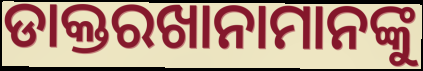
ଡାକ୍ତରଖାନାମାନଙ୍କୁ